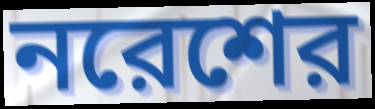
নরেশের